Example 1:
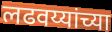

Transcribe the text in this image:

लढवय्यांच्या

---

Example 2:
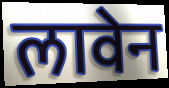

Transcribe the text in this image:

लावेन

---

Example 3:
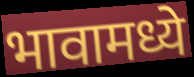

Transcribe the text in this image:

भावामध्ये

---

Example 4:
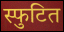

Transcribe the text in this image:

स्फुटित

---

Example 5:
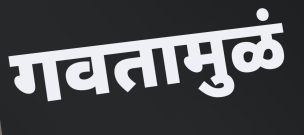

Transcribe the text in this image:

गवतामुळं